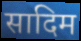
सादिम